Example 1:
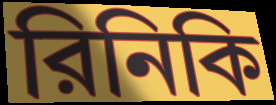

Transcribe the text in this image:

রিনিকি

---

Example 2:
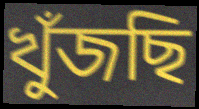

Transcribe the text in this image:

খুঁজছি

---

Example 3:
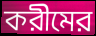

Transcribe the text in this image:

করীমের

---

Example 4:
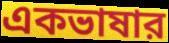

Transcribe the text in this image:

একভাষার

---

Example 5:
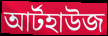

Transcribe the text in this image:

আর্টহাউজ